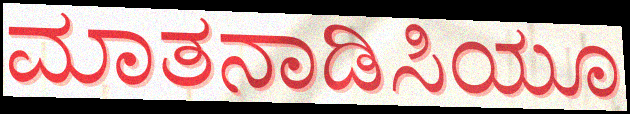
ಮಾತನಾಡಿಸಿಯೂ